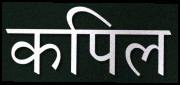
कपिल